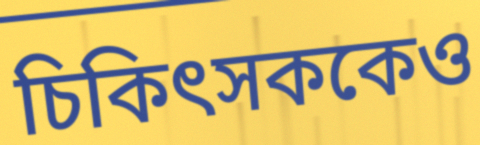
চিকিৎসককেও